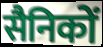
सैनिकों